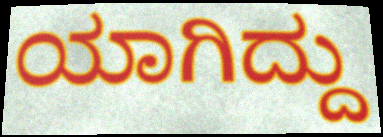
ಯಾಗಿದ್ದು